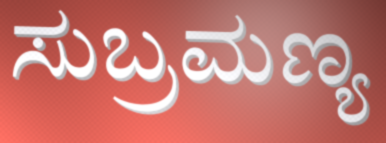
ಸುಬ್ರಮಣ್ಯ